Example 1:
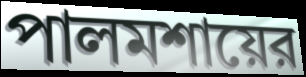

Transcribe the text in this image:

পালমশায়ের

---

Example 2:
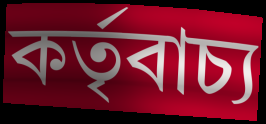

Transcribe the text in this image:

কর্তৃবাচ্য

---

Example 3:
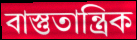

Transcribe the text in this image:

বাস্তুতান্ত্রিক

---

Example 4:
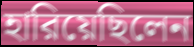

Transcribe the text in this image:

হারিয়েছিলেন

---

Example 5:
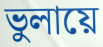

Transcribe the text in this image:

ভুলায়ে